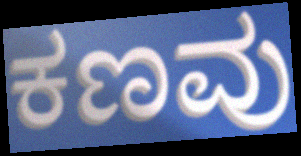
ಕಣವು